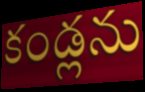
కండ్లను